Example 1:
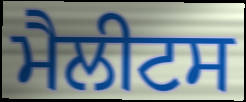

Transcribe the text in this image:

ਮੈਲੀਟਸ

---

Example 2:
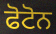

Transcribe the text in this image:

ਫੋਟੋਨ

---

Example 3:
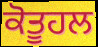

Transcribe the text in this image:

ਕੋਤੂਹਲ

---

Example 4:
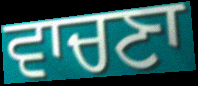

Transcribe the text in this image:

ਵਾਚਣਾ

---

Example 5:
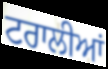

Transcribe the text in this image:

ਟਰਾਲੀਆਂ